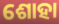
ଶୋହା